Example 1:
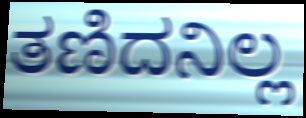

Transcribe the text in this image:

ತಣಿದನಿಲ್ಲ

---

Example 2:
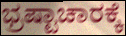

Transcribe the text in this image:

ಭ್ರಷ್ಟಾಚಾರಕ್ಕೆ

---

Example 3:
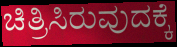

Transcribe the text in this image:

ಚಿತ್ರಿಸಿರುವುದಕ್ಕೆ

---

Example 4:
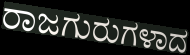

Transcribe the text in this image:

ರಾಜಗುರುಗಳಾದ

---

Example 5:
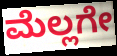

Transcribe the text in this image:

ಮೆಲ್ಲಗೇ